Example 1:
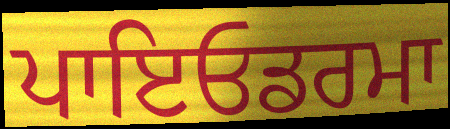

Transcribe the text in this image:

ਪਾਇਓਡਰਮਾ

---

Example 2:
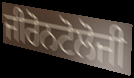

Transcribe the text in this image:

ਜੀਰੋਨਟੋਲੋਜੀ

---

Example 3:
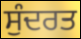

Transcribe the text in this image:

ਸੁੰਦਰਤ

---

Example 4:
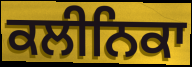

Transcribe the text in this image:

ਕਲੀਨਿਕਾ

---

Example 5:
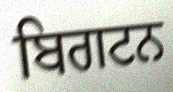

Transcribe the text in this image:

ਬਿਗਟਨ